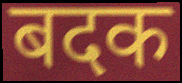
बदक